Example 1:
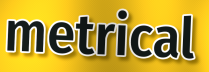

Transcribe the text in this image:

metrical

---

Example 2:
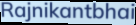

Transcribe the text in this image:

Rajnikantbhai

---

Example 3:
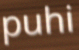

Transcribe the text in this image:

puhi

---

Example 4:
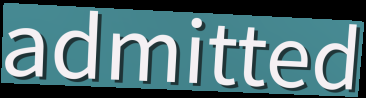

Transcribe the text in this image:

admitted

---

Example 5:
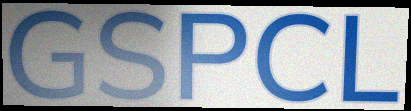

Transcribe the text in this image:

GSPCL